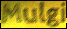
Mulgi